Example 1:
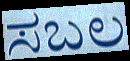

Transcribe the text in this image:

ಸಬಲ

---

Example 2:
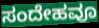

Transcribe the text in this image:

ಸಂದೇಹವೂ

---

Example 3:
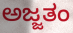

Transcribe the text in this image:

ಅಜ್ಜತಂ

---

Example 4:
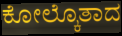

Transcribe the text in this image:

ಕೋಲ್ಕೊತಾದ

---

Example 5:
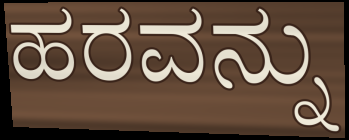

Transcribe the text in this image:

ಹರವನ್ನು